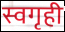
स्वगृही